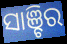
ସାଞ୍ଚିର